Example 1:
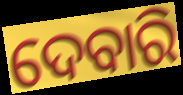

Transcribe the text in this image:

ଦେବାରି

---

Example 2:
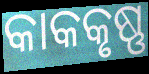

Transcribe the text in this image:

କାକକୃଷ୍ଣ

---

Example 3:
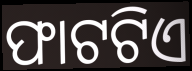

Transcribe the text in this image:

ଫାଟଟିଏ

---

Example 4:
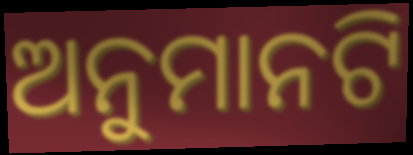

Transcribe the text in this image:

ଅନୁମାନଟି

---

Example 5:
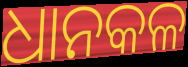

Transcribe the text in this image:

ଧାନକଳ